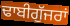
ਢਾਬੀਗੁੱਜਰਾਂ